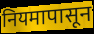
नियमापासून